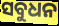
ସବୁଧନ